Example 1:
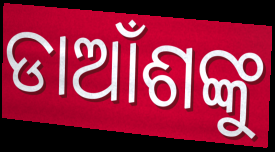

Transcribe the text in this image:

ଡାଆଁଶଙ୍କୁ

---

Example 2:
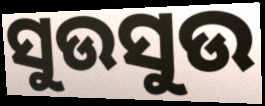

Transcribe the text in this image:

ସୁଉସୁଉ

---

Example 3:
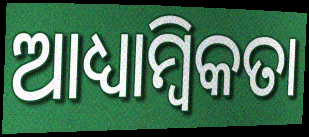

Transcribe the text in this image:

ଆଧ୍ୟାମ୍ବିକତା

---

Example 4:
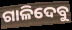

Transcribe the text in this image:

ଗାଳିଦେବୁ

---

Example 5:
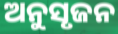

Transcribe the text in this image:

ଅନୁସୃଜନ